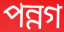
পন্নগ